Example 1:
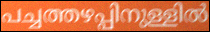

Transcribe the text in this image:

പച്ചത്തഴപ്പിനുള്ളിൽ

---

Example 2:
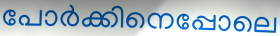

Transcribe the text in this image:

പോർക്കിനെപ്പോലെ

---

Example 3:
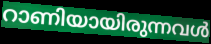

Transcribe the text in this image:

റാണിയായിരുന്നവൾ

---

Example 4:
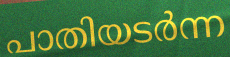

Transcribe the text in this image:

പാതിയടർന്ന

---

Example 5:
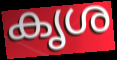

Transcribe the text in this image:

കൃശ